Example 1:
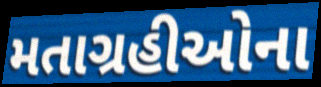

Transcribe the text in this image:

મતાગ્રહીઓના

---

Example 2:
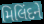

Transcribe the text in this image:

મિલિંદને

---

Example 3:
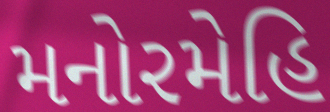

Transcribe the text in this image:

મનોરમેહિ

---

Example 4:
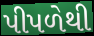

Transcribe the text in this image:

પીપળેથી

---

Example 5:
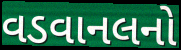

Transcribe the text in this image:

વડવાનલનો